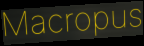
Macropus